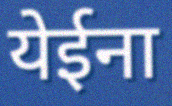
येईना